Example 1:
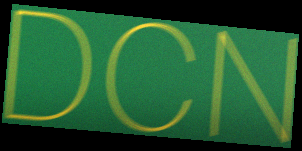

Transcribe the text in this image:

DCN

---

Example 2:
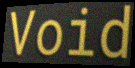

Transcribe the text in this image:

Void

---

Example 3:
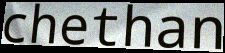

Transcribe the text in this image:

chethan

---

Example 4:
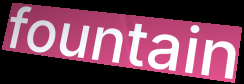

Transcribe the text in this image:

fountain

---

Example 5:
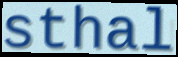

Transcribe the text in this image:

sthal